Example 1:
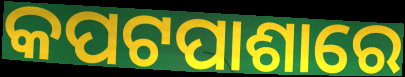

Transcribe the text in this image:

କପଟପାଶାରେ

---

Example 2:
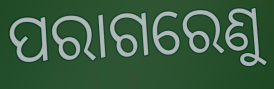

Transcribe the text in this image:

ପରାଗରେଣୁ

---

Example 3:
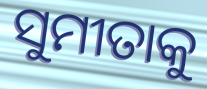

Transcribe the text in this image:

ସୁମୀତାକୁ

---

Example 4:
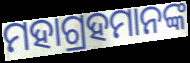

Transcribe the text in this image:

ମହାଗ୍ରହମାନଙ୍କ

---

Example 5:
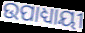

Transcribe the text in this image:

ଉପାଧ୍ୟାୟୀ